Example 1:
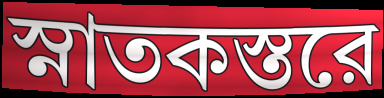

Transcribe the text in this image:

স্নাতকস্তরে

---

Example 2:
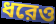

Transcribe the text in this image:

ধরেও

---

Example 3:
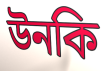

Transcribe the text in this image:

উনকি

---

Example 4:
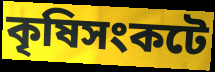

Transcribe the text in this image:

কৃষিসংকটে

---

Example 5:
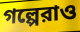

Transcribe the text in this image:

গল্পেরাও